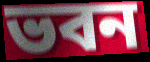
ভবন